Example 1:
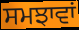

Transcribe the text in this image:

ਸਮਝਾਵਾਂ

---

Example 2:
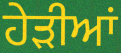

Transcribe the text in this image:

ਹੇੜੀਆਂ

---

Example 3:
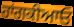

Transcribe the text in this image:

ਹਾਂਗਕੀਆਓ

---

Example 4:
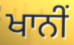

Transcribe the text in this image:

ਖਾਨੀਂ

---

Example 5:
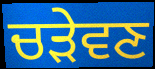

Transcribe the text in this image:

ਚੜੇਵਣ